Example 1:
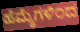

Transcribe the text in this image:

ಹೆಮ್ಮೆಗಳಿಂದ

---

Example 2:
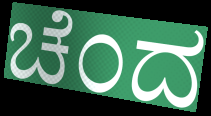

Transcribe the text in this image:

ಚೆಂದ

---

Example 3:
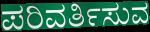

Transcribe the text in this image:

ಪರಿವರ್ತಿಸುವ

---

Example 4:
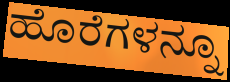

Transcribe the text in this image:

ಹೊರೆಗಳನ್ನೂ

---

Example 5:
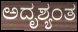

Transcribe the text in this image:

ಅದೃಶ್ಯಂತ